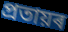
প্ৰতায়ৰ